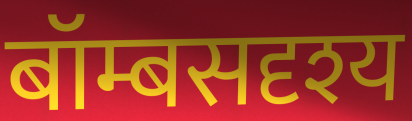
बॉम्बसदृश्य